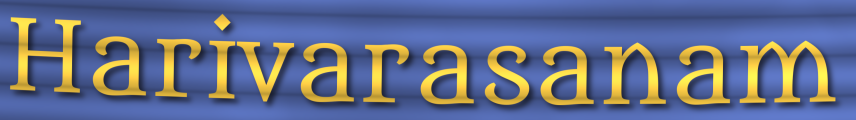
Harivarasanam